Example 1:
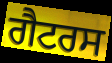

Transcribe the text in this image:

ਗੈਟਰਸ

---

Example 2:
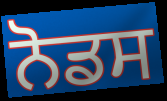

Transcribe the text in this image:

ਨੋਡਸ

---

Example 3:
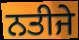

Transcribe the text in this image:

ਨਤੀਜੇ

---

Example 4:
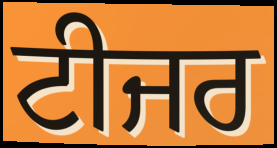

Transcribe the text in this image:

ਟੀਜਰ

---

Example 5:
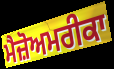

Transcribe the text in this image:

ਮੈਜ਼ੋਅਮਰੀਕਾ